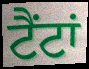
ਟੈਂਟਾਂ